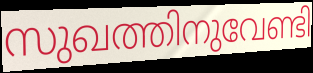
സുഖത്തിനുവേണ്ടി